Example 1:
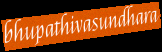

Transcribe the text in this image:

bhupathivasundhara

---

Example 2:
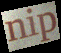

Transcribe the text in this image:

nip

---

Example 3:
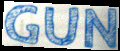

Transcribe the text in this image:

GUN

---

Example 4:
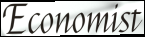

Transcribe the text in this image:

Economist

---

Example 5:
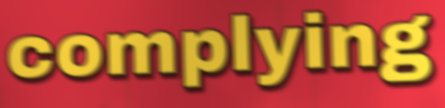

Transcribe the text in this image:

complying